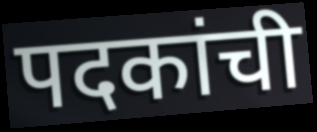
पदकांची